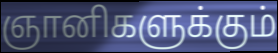
ஞானிகளுக்கும்